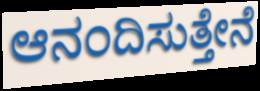
ಆನಂದಿಸುತ್ತೇನೆ